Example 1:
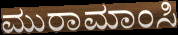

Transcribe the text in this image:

ಮುರಾಮಾಂಸಿ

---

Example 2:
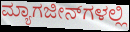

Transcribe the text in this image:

ಮ್ಯಾಗಜೀನ್‌ಗಳಲ್ಲಿ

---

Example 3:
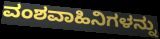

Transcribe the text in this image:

ವಂಶವಾಹಿನಿಗಳನ್ನು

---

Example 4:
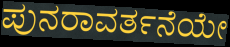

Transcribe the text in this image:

ಪುನರಾವರ್ತನೆಯೇ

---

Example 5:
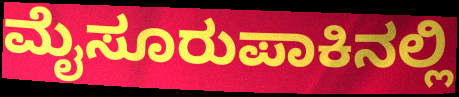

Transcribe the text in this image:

ಮೈಸೂರುಪಾಕಿನಲ್ಲಿ